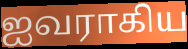
ஐவராகிய